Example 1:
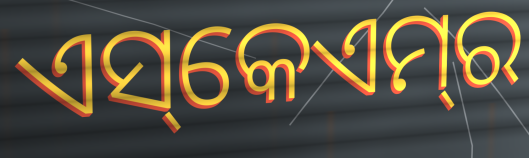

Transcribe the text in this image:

ଏସ୍‌କେଏମ୍‌ର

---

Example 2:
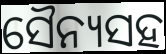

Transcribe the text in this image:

ସୈନ୍ୟସହ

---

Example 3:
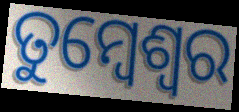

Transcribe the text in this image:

ତୁମ୍ବେଶ୍ଵର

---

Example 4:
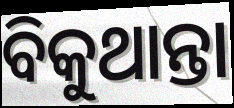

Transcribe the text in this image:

ବିକୁଥାନ୍ତା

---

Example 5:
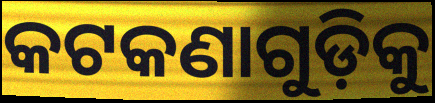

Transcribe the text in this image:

କଟକଣାଗୁଡ଼ିକୁ